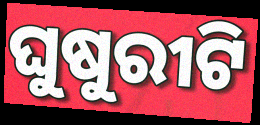
ଘୁଷୁରୀଟି